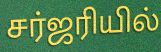
சர்ஜரியில்